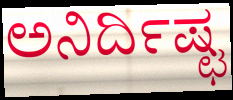
ಅನಿರ್ದಿಷ್ಟ